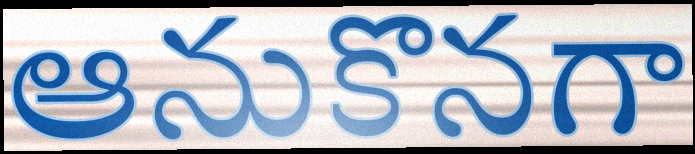
ఆనుకొనగా